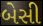
બેસી